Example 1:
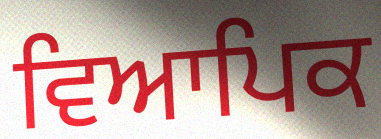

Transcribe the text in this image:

ਵਿਆਪਿਕ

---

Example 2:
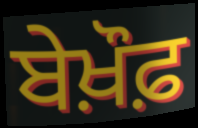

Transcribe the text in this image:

ਬੇਖ਼ੌਫ਼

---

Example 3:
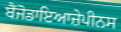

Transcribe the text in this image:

ਬੈਂਜੋਡਾਇਆਜ਼ੇਪੀਨਸ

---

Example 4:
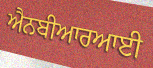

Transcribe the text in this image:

ਐਨਬੀਆਰਆਈ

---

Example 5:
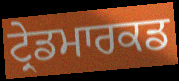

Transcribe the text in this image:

ਟ੍ਰੇਡਮਾਰਕਡ